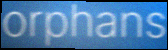
orphans